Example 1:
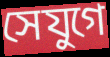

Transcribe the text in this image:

সেযুগে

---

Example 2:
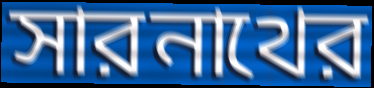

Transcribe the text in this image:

সারনাথের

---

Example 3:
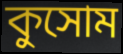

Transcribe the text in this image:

কুসোম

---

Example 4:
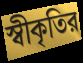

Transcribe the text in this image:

স্বীকৃতির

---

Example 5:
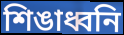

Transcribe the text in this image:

শিঙাধ্বনি